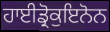
ਹਾਈਡ੍ਰੋਕੁਇਨੋਨ